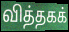
வித்தகக்